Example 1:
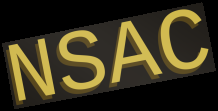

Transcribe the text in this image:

NSAC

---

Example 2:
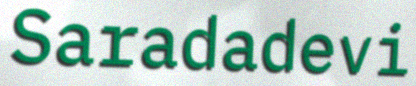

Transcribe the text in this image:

Saradadevi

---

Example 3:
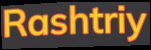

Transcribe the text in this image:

Rashtriy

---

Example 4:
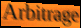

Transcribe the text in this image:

Arbitrage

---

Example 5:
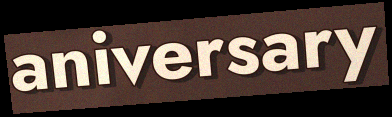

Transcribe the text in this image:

aniversary